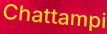
Chattampi